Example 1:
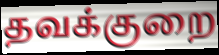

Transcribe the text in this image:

தவக்குறை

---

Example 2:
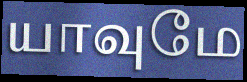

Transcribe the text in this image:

யாவுமே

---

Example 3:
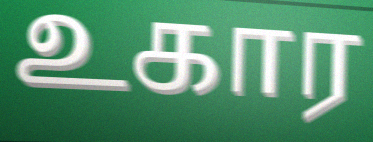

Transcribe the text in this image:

உகார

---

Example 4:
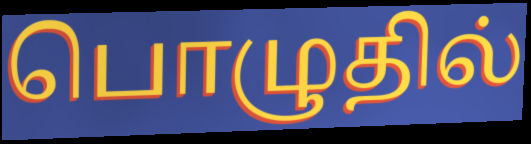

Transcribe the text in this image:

பொழுதில்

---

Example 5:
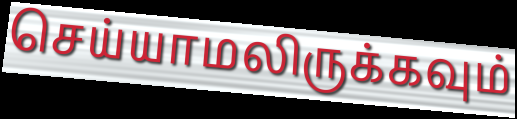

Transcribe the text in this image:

செய்யாமலிருக்கவும்